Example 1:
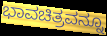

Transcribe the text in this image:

ಭಾವಚಿತ್ರವನ್ನೂ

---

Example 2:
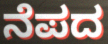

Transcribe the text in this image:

ನೆಪದ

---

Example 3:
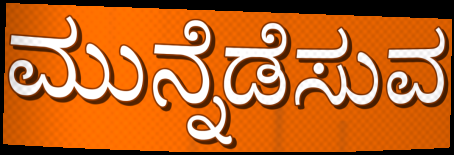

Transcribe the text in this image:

ಮುನ್ನೆಡೆಸುವ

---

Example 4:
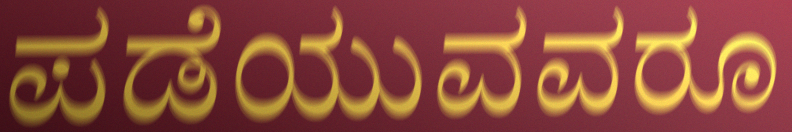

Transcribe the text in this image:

ಪಡೆಯುವವರೂ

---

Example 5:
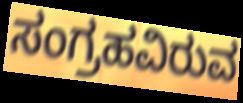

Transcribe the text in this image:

ಸಂಗ್ರಹವಿರುವ